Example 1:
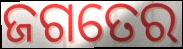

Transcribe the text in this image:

ଜଗତେର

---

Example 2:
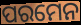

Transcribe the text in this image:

ପରମେନ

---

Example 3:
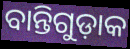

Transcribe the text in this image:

ବାନ୍ତିଗୁଡ଼ାକ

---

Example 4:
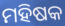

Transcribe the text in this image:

ମହିଷକ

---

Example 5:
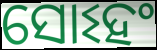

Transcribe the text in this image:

ସୋଽହଂ